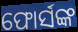
ଫୋର୍ସଙ୍କ